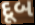
દૂબ